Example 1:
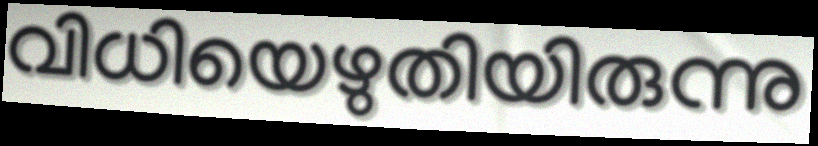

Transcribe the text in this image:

വിധിയെഴുതിയിരുന്നു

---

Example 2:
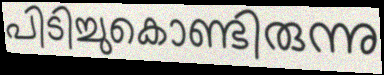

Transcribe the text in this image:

പിടിച്ചുകൊണ്ടിരുന്നു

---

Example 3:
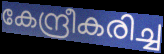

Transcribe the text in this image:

കേന്ദ്രീകരിച്ച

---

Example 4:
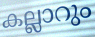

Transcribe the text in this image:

കല്ലാറും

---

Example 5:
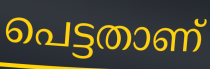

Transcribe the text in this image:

പെട്ടതാണ്